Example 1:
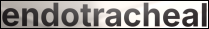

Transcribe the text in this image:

endotracheal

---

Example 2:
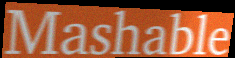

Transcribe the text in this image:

Mashable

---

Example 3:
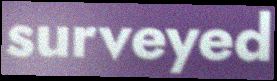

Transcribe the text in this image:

surveyed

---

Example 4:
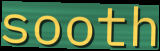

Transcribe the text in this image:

sooth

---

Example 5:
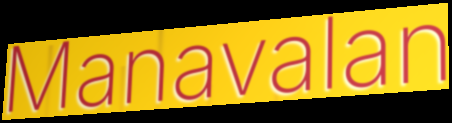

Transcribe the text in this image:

Manavalan